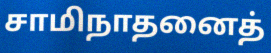
சாமிநாதனைத்